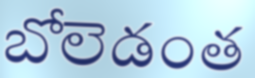
బోలెడంత